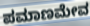
ಪಮಾಣಮೇವ